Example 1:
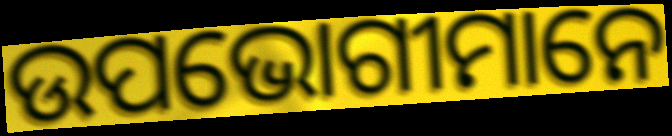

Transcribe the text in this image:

ଉପଭୋଗୀମାନେ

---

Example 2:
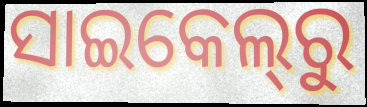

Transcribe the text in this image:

ସାଇକେଲ୍‌ରୁ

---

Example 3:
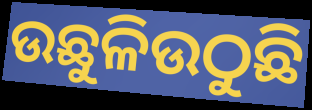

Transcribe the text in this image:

ଉଛୁଳିଉଠୁଛି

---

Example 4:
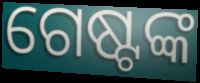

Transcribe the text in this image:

ଗେଷ୍ଟଙ୍କ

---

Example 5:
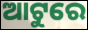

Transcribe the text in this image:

ଆଟୁରେ